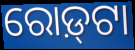
ରୋଡ଼୍‌ଟା